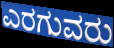
ಎರಗುವರು